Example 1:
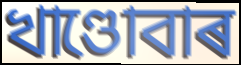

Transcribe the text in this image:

খাণ্ডোবাৰ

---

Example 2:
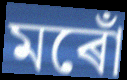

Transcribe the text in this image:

মৰোঁ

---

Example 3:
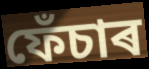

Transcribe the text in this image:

ফেঁচাৰ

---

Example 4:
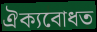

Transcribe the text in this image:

ঐক্যবোধত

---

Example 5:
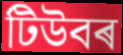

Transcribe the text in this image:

টিউবৰ